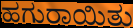
ಹಗುರಾಯಿತು